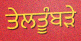
ਤੇਲਤੂੰਬੜੇ